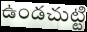
ఉండచుట్టి